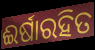
ଈର୍ଷାରହିତ